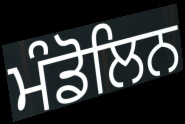
ਮੰਡੋਲਿਨ